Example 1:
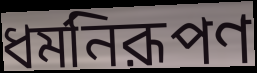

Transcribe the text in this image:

ধর্মনিরূপণ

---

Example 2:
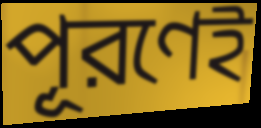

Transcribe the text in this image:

পূরণেই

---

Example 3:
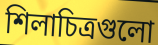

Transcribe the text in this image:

শিলাচিত্রগুলো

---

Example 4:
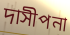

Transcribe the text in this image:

দাসীপনা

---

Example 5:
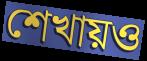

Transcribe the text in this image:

শেখায়ও